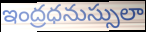
ఇంద్రధనుస్సులా